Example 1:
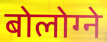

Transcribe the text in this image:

बोलोग्ने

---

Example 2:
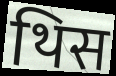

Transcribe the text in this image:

थिस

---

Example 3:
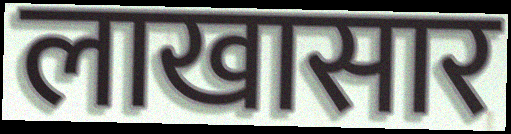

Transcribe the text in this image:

लाखासार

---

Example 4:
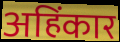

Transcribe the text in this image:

अहिंकार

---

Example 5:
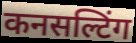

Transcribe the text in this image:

कनसल्टिंग